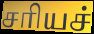
சரியச்